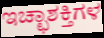
ಇಚ್ಛಾಶಕ್ತಿಗಳ